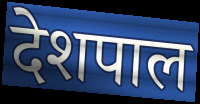
देशपाल